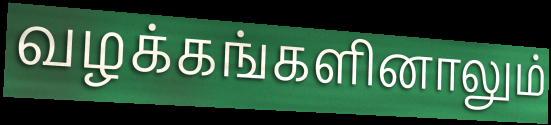
வழக்கங்களினாலும்